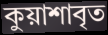
কুয়াশাবৃত